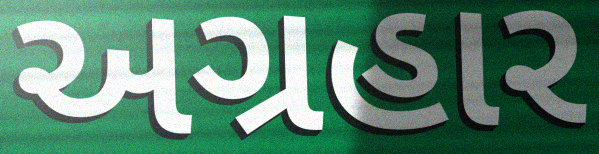
અગ્રહાર